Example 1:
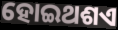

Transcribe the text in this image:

ହୋଇଥଶଏ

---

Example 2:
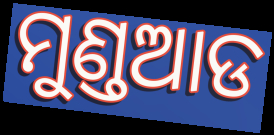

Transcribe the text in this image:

ମୁଣ୍ଡଆଡ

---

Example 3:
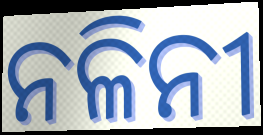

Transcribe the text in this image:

ନଳିନୀ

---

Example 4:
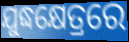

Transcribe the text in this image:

ଯୁଦ୍ଧକ୍ଷେତ୍ରରେ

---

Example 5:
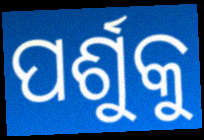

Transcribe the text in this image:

ପର୍ଶୁକୁ